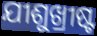
ଯୀଶୁଖ୍ରୀଷ୍ଟ